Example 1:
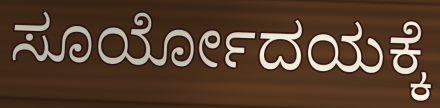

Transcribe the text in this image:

ಸೂರ್ಯೋದಯಕ್ಕೆ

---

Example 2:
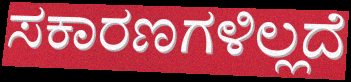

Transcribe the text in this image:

ಸಕಾರಣಗಳಿಲ್ಲದೆ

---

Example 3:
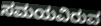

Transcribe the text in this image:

ಸಮಯವಿರುವ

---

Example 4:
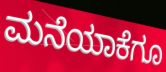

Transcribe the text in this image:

ಮನೆಯಾಕೆಗೂ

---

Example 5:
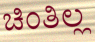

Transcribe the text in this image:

ಚಿಂತಿಲ್ಲ